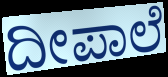
ದೀಪಾಲೆ